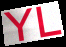
YL